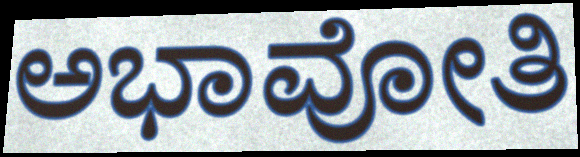
ಅಭಾವೋತಿ